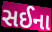
સઈના